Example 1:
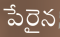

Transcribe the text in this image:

పేరైన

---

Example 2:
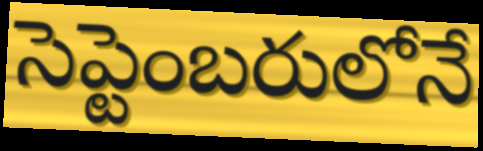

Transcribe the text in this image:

సెప్టెంబరులోనే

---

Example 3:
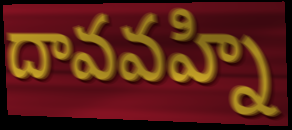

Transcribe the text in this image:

దావవహ్ని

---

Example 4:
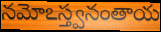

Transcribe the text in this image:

నమోఽస్త్వనంతాయ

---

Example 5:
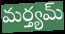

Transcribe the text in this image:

మర్త్యమ్